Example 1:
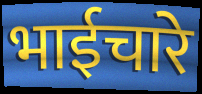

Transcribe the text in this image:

भाईचारे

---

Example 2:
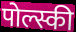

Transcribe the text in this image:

पोल्स्की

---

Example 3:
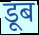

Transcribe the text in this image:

डूब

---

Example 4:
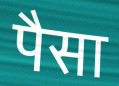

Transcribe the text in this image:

पैसा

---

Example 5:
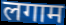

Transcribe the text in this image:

लगाम